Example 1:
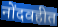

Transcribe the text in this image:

नोंदवहीत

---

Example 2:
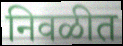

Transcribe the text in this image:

निवळीत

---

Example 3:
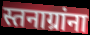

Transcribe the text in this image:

स्तनाग्रांना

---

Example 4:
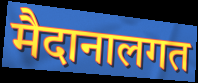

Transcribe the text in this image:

मैदानालगत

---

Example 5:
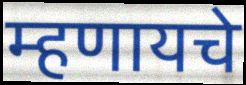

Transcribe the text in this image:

म्हणायचे